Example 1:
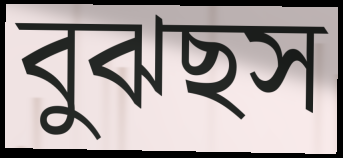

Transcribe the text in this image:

বুঝছস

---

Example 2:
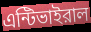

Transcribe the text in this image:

এন্টিভাইরাল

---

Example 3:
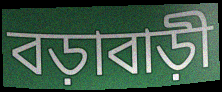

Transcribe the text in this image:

বড়াবাড়ী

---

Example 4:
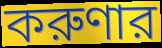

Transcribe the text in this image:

করুণার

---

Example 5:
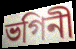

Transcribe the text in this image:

ভগিনী